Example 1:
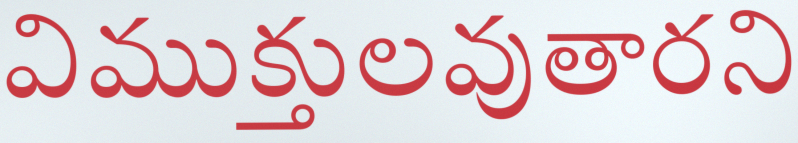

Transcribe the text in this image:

విముక్తులవుతారని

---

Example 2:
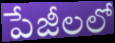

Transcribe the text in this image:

పేజీలలో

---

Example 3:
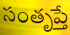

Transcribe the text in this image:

సంతృప్తే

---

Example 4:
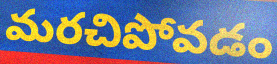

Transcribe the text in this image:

మరచిపోవడం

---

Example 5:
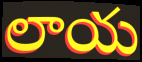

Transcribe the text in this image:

లాయ